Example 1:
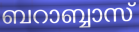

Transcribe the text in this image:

ബറാബ്ബാസ്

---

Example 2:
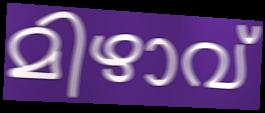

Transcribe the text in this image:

മിഴാവ്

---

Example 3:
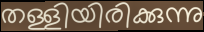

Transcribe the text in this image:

തള്ളിയിരിക്കുന്നു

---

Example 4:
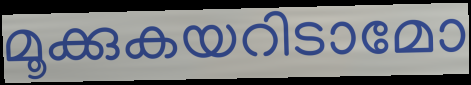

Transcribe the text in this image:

മൂക്കുകയറിടാമോ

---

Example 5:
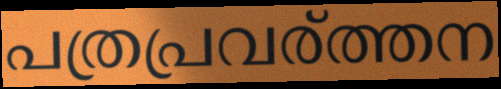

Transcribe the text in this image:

പത്രപ്രവര്ത്തന